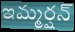
ఇమ్మర్షన్